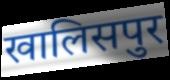
खालिसपुर